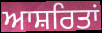
ਆਸ਼ਰਿਤਾਂ